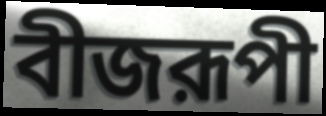
বীজরূপী